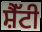
ਸ਼ੈੱਟੀ